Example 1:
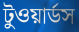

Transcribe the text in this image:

টুওয়ার্ডস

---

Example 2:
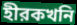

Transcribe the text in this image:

হীরকখনি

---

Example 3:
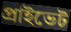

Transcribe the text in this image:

প্রাইভেট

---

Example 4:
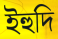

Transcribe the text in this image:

ইহুদি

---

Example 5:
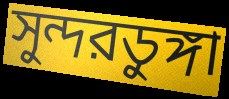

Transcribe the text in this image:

সুন্দরডুঙ্গা